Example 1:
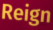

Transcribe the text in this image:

Reign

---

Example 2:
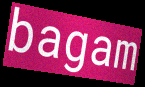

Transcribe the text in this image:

bagam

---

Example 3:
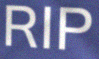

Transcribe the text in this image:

RIP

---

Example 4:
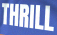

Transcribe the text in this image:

THRILL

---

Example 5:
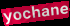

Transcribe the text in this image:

yochane